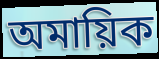
অমায়িক